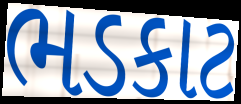
ભડકાટ